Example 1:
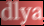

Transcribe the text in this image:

dlya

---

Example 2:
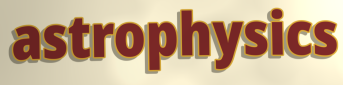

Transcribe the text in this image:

astrophysics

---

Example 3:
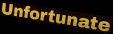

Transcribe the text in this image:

Unfortunate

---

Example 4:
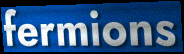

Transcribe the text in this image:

fermions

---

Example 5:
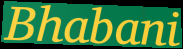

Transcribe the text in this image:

Bhabani